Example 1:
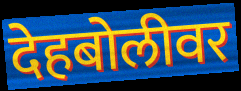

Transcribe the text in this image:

देहबोलीवर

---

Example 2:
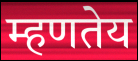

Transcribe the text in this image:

म्हणतेय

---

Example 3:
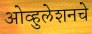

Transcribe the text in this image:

ओव्हुलेशनचे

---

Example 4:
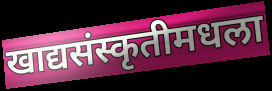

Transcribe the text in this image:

खाद्यसंस्कृतीमधला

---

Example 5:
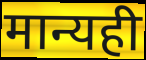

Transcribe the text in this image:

मान्यही